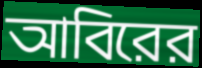
আবিরের